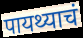
पायथ्याचं